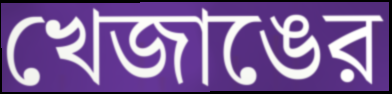
খেজাঙের